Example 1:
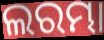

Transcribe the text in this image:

ଲରମ୍ଭା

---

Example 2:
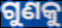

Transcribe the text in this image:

ଗୁଣକୁ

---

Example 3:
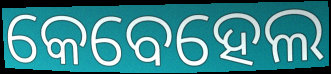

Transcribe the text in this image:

କେବେହେଲ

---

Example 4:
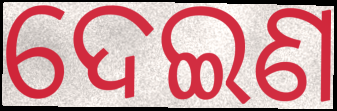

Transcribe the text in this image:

ଦେଇଣ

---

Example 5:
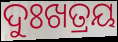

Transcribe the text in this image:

ଦୁଃଖତ୍ରୟ